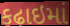
કઢાઇમાં